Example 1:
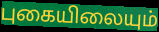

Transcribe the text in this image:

புகையிலையும்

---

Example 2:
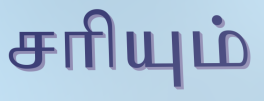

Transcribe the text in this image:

சரியும்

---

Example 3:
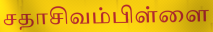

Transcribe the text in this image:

சதாசிவம்பிள்ளை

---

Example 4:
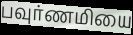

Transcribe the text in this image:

பவுர்ணமியை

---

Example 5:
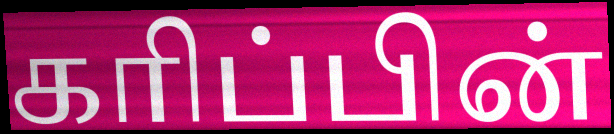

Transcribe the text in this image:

கரிப்பின்